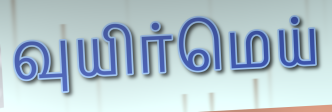
வுயிர்மெய்